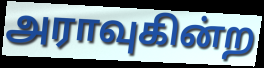
அராவுகின்ற